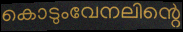
കൊടുംവേനലിന്റെ